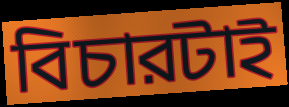
বিচারটাই